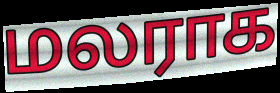
மலராக